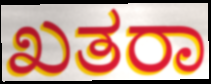
ಖತರಾ